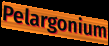
Pelargonium